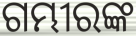
ଗମ୍ଭୀରଙ୍କ